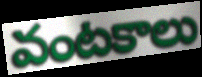
వంటకాలు